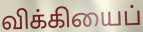
விக்கியைப்